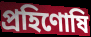
প্রহিণোষি